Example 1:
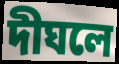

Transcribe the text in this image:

দীঘলে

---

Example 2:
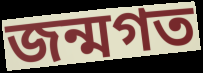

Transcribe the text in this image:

জন্মগত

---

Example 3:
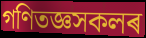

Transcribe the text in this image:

গণিতজ্ঞসকলৰ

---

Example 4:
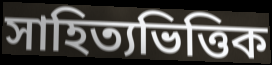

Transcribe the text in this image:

সাহিত্যভিত্তিক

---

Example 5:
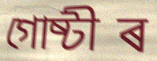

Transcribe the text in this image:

গোষ্টীৰ